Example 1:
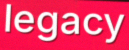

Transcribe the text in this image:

legacy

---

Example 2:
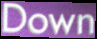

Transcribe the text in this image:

Down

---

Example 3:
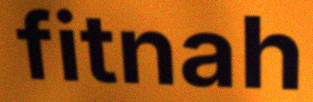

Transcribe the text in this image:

fitnah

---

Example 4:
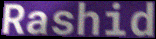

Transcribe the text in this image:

Rashid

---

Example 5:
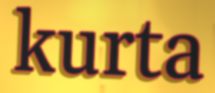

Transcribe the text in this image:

kurta